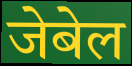
जेबेल